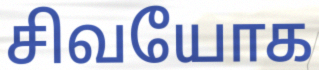
சிவயோக